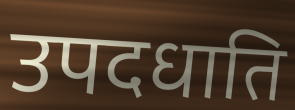
उपदधाति